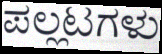
ಪಲ್ಲಟಗಳು